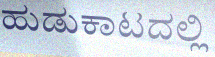
ಹುಡುಕಾಟದಲ್ಲಿ